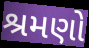
શ્રમણો